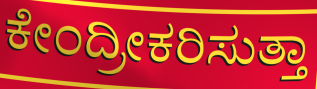
ಕೇಂದ್ರೀಕರಿಸುತ್ತಾ